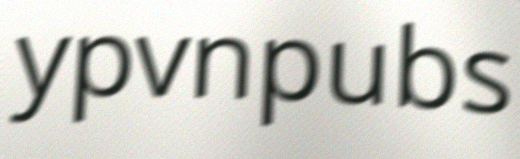
ypvnpubs